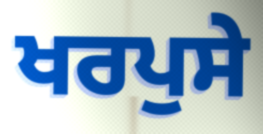
ਖਰਪੁਸੇ